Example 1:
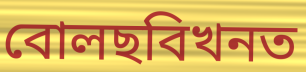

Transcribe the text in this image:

বোলছবিখনত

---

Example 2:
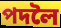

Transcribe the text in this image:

পদলৈ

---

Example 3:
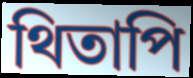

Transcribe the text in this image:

থিতাপি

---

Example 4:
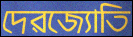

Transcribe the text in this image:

দেৱজ্যোতি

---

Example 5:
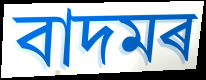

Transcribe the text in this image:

বাদমৰ